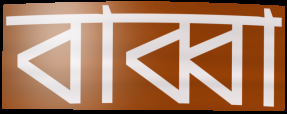
বাব্বা